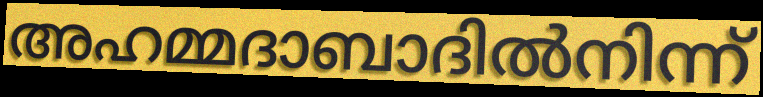
അഹമ്മദാബാദിൽനിന്ന്